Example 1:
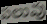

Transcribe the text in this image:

పలువు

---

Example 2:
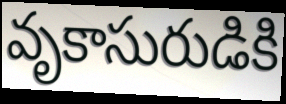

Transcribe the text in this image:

వృకాసురుడికి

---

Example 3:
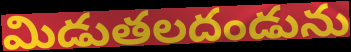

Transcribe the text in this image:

మిడుతలదండును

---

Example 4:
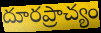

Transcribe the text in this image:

దూరప్రాచ్యం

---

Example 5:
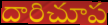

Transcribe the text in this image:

దారిచూప